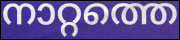
നാറ്റത്തെ